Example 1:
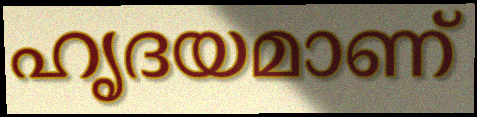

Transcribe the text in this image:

ഹൃദയമാണ്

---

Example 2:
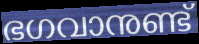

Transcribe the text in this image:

ഭഗവാനുണ്ട്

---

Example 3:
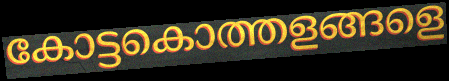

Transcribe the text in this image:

കോട്ടകൊത്തളങ്ങളെ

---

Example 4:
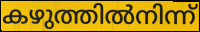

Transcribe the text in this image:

കഴുത്തിൽനിന്ന്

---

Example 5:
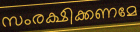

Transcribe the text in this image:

സംരക്ഷിക്കണമേ